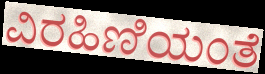
ವಿರಹಿಣಿಯಂತೆ